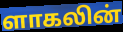
ளாகலின்